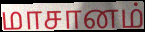
மாசானம்